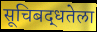
सूचिबद्धतेला